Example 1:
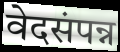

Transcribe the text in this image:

वेदसंपन्न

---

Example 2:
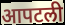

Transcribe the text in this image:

आपटली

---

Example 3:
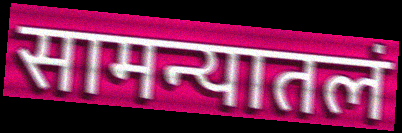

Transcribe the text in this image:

सामन्यातलं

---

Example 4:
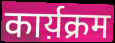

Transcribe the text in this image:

कार्य़क्रम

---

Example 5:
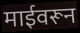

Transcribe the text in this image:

माईवरून